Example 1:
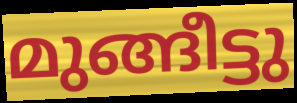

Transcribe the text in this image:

മുങ്ങീട്ടു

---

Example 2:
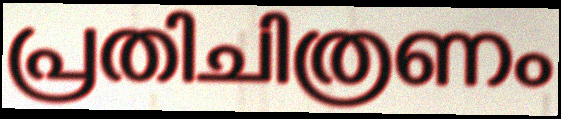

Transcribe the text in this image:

പ്രതിചിത്രണം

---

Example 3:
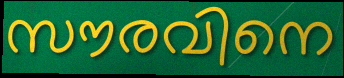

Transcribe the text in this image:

സൗരവിനെ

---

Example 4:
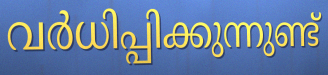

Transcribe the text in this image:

വർധിപ്പിക്കുന്നുണ്ട്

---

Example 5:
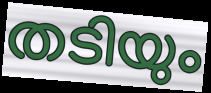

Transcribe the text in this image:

തടിയും